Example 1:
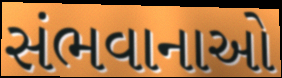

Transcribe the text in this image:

સંભવાનાઓ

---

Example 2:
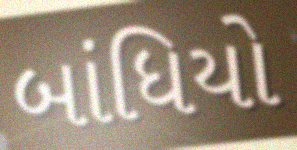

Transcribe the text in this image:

બાંધિયો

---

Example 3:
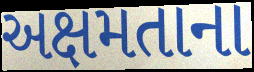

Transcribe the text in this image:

અક્ષમતાના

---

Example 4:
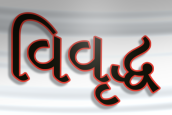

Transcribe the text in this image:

વિવૃદ્ધ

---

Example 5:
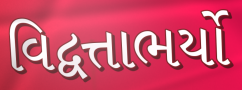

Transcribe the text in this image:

વિદ્વત્તાભર્યો